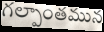
గల్పాంతమున